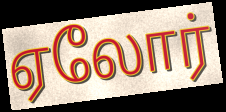
ஏலோர்